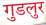
गुडलुर